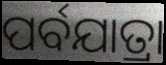
ପର୍ବଯାତ୍ରା